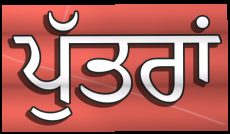
ਪੁੱਤਰਾਂ